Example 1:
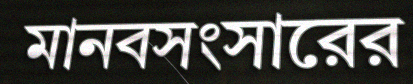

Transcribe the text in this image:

মানবসংসারের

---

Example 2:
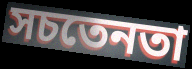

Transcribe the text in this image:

সচতেনতা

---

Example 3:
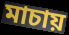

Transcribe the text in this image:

মাচায়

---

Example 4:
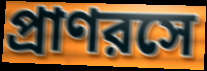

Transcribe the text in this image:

প্রাণরসে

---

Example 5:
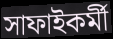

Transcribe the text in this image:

সাফাইকর্মী